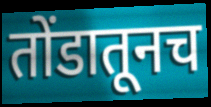
तोंडातूनच